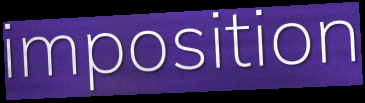
imposition